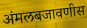
अंमलबजावणीस